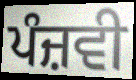
ਪੰਜ਼ਵੀ